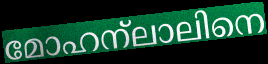
മോഹന്ലാലിനെ